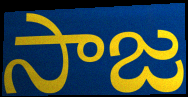
సాజ